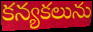
కన్యకలును